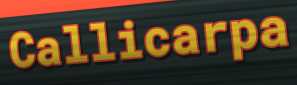
Callicarpa